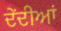
ਦੇਂਦੀਆਂ